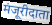
मंजूरीदाता